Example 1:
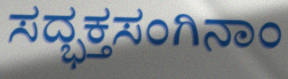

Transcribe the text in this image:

ಸದ್ಭಕ್ತಸಂಗಿನಾಂ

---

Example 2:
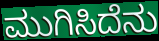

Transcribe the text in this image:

ಮುಗಿಸಿದೆನು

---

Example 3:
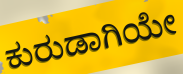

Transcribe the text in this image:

ಕುರುಡಾಗಿಯೇ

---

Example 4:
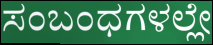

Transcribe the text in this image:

ಸಂಬಂಧಗಳಲ್ಲೇ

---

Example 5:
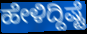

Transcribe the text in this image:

ಹೇಳಿದ್ದಿಷ್ಟೆ